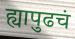
ह्यापुढचं